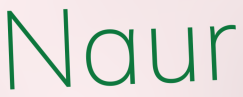
Naur